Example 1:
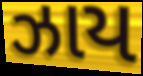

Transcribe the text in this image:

ઝાય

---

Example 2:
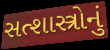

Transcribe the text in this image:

સત્શાસ્ત્રોનું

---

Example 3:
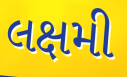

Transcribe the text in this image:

લક્ષમી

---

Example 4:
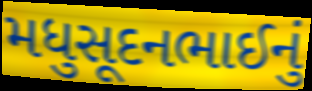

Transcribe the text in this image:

મધુસૂદનભાઈનું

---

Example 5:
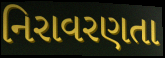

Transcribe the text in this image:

નિરાવરણતા